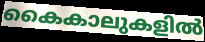
കൈകാലുകളിൽ